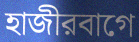
হাজীরবাগে